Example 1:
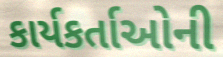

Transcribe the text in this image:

કાર્યકર્તાઓની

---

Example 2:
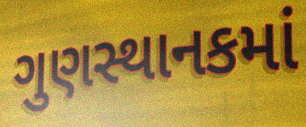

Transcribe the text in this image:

ગુણસ્થાનકમાં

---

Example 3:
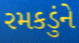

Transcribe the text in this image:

રમકડુંને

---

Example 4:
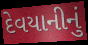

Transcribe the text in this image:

દેવયાનીનું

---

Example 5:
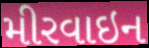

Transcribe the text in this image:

મીરવાઇન